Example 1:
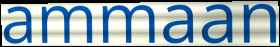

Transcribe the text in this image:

ammaan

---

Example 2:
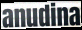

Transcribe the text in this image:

anudina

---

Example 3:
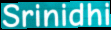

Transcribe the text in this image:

Srinidhi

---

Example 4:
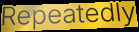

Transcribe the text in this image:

Repeatedly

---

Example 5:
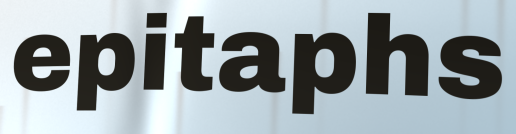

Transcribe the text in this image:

epitaphs